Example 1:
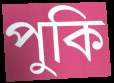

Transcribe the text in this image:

পুকি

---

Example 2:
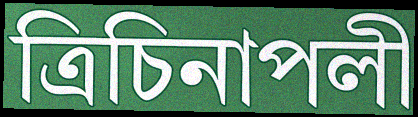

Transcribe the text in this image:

ত্রিচিনাপলী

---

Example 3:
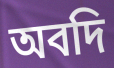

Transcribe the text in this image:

অবদি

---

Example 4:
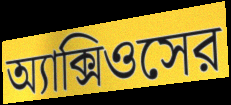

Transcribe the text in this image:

অ্যাক্সিওসের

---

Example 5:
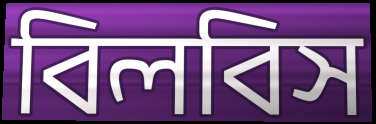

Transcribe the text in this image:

বিলবিস